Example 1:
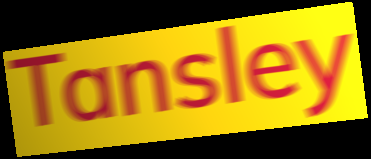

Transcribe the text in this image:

Tansley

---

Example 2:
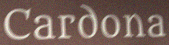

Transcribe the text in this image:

Cardona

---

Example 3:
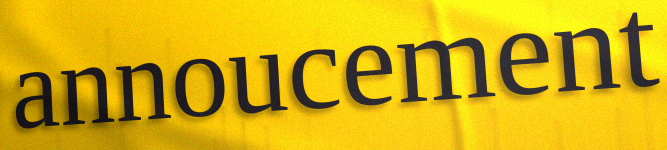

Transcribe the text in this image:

annoucement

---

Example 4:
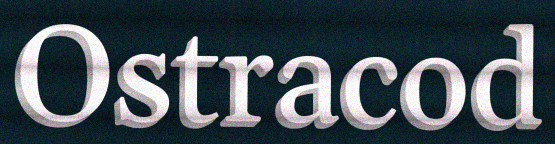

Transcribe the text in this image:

Ostracod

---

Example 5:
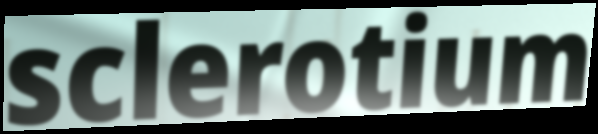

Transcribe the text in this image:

sclerotium